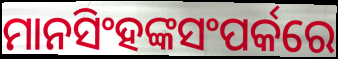
ମାନସିଂହଙ୍କସଂପର୍କରେ